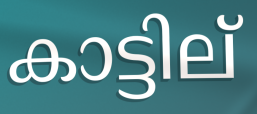
കാട്ടില്